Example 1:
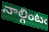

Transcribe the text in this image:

నాల్గింటఁ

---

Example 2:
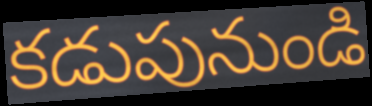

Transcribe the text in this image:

కడుపునుండి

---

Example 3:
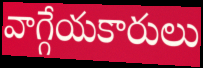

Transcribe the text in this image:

వాగ్గేయకారులు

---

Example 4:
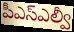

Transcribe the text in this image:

పీఎస్ఎల్వీ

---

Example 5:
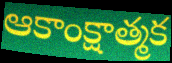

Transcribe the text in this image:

ఆకాంక్షాత్మక